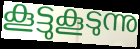
കൂട്ടുകൂടുന്നു